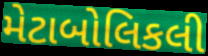
મેટાબોલિકલી